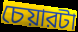
চেয়ারটা